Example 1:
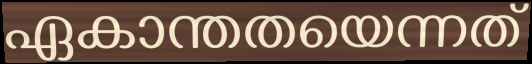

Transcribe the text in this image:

ഏകാന്തതയെന്നത്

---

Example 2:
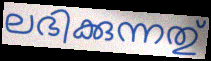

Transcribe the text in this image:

ലഭിക്കുന്നതു്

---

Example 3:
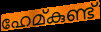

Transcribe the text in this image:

ഹേമ്കുണ്ട്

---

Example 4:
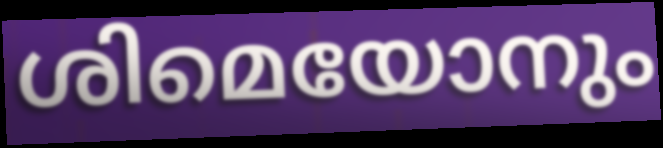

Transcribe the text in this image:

ശിമെയോനും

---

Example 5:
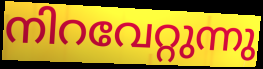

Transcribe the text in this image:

നിറവേറ്റുന്നു